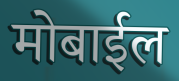
मोबाईल